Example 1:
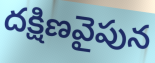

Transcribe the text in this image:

దక్షిణవైపున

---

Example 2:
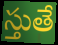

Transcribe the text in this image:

స్తుతే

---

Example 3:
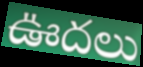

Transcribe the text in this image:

ఊదలు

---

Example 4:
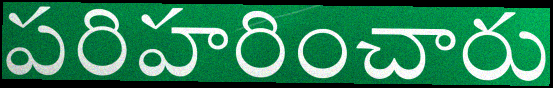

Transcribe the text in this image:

పరిహరించారు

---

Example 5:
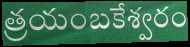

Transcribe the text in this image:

త్రయంబకేశ్వరం